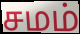
சமம்